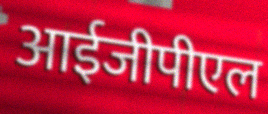
आईजीपीएल